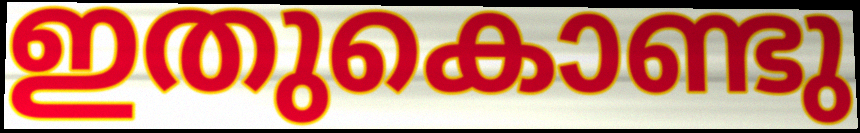
ഇതുകൊണ്ടു